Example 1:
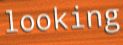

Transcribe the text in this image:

looking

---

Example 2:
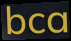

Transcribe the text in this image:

bca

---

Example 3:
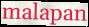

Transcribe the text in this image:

malapan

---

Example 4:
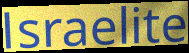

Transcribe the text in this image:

Israelite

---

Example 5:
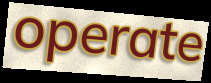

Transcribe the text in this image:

operate